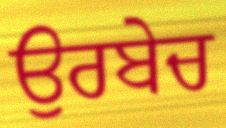
ਉਰਬੇਚ